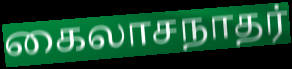
கைலாசநாதர்